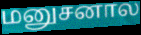
மனுசனால